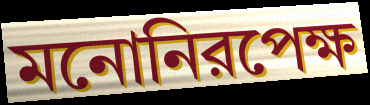
মনোনিরপেক্ষ